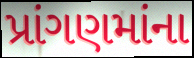
પ્રાંગણમાંના